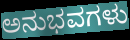
ಅನುಭವಗಳು